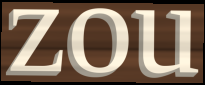
zou